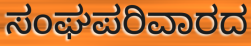
ಸಂಘಪರಿವಾರದ